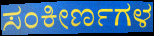
ಸಂಕೀರ್ಣಗಳ